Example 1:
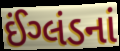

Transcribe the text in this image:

ઈંગ્લંડનાં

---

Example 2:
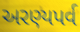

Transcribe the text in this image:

અરણ્યપર્વ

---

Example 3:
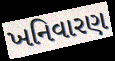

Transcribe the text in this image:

ખનિવારણ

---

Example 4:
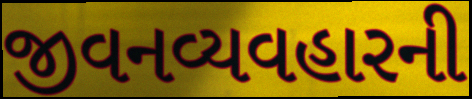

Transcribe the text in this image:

જીવનવ્યવહારની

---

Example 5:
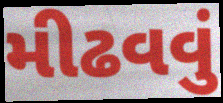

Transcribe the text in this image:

મીઢવવું